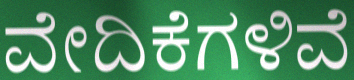
ವೇದಿಕೆಗಳಿವೆ